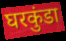
घरकुंडा